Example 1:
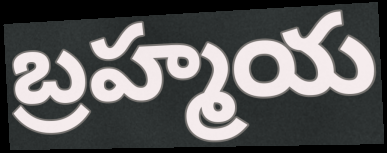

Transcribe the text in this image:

బ్రహ్మయ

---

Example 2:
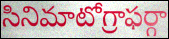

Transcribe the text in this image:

సినిమాటోగ్రాఫర్గా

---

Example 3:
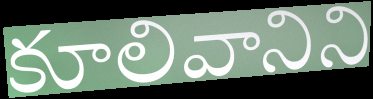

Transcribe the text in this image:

కూలివానిని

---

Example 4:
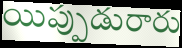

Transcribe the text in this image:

యిప్పుడురారు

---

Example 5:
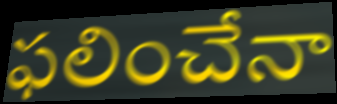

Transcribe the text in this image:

ఫలించేనా